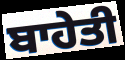
ਬਾਹੇਤੀ